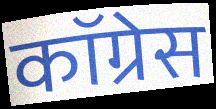
कॉग्रेस